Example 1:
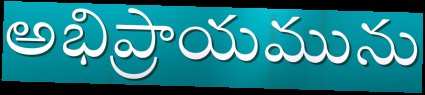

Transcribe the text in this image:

అభిప్రాయమును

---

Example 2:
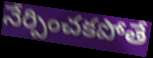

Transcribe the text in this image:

నేర్పించకపోతే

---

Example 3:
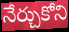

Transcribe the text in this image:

నేర్చుకోని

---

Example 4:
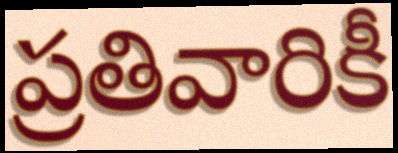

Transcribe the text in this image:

ప్రతివారికీ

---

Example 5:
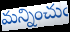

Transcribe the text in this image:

మన్నించుఁ